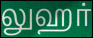
லுஹர்